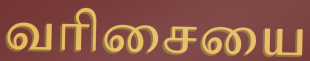
வரிசையை